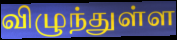
விழுந்துள்ள